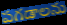
పగడాలను